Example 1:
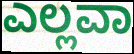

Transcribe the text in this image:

ಎಲ್ಲವಾ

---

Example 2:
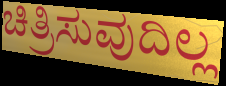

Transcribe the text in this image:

ಚಿತ್ರಿಸುವುದಿಲ್ಲ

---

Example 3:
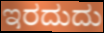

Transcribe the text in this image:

ಇರದುದು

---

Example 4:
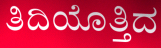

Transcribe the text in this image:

ತಿದಿಯೊತ್ತಿದ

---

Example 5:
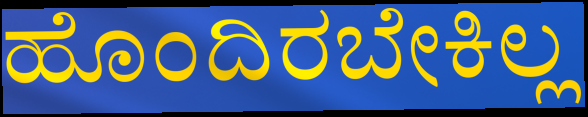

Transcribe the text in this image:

ಹೊಂದಿರಬೇಕಿಲ್ಲ